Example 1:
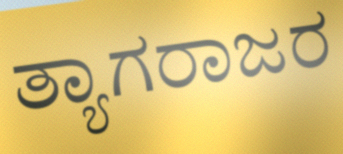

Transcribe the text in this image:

ತ್ಯಾಗರಾಜರ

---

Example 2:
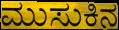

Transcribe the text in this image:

ಮುಸುಕಿನ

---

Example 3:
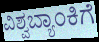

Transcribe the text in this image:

ವಿಶ್ವಬ್ಯಾಂಕಿಗೆ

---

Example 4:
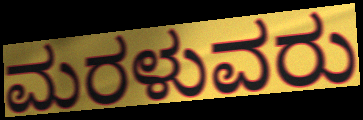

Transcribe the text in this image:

ಮರಳುವರು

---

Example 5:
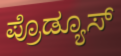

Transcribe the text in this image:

ಪ್ರೊಡ್ಯೂಸ್